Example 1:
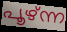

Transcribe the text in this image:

പൂഴ്ന്ന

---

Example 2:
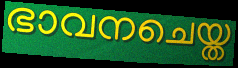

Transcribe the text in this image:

ഭാവനചെയ്ത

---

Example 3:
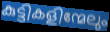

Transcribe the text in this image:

കുട്ടികളിന്മേലും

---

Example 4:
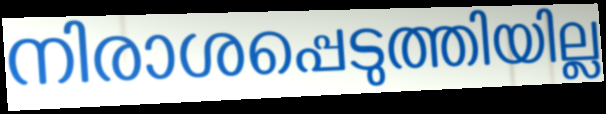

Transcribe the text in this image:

നിരാശപ്പെടുത്തിയില്ല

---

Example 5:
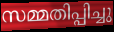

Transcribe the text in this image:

സമ്മതിപ്പിച്ചു